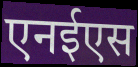
एनईएस